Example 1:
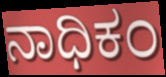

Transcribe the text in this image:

ನಾಧಿಕಂ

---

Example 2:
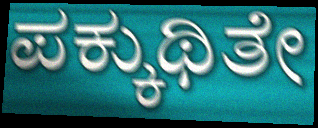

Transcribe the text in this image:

ಪಕ್ಕುಥಿತೇ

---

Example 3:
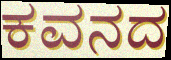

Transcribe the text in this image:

ಕವನದ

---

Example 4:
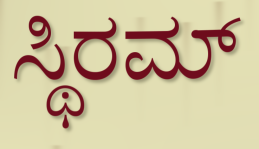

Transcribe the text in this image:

ಸ್ಥಿರಮ್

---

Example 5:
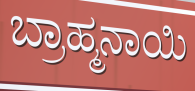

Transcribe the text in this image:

ಬ್ರಾಹ್ಮನಾಯಿ